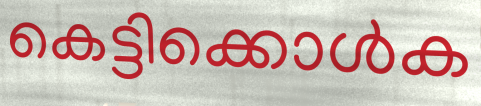
കെട്ടിക്കൊൾക